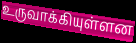
உருவாக்கியுள்ளன